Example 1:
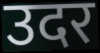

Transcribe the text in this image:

उदर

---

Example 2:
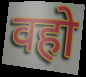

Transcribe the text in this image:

वहो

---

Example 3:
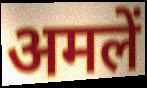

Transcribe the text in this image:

अमलें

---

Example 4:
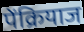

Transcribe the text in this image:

पेंक्रियाज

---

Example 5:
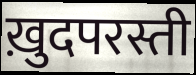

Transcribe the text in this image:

ख़ुदपरस्ती